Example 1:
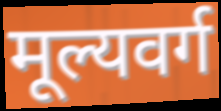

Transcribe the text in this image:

मूल्यवर्ग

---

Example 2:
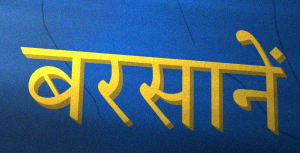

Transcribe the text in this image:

बरसानें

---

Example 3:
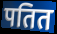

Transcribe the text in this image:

पतित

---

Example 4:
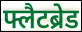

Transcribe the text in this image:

फ्लैटब्रेड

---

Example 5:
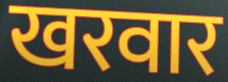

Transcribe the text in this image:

खरवार